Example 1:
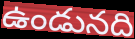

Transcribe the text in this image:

ఉండునది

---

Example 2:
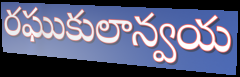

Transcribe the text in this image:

రఘుకులాన్వయ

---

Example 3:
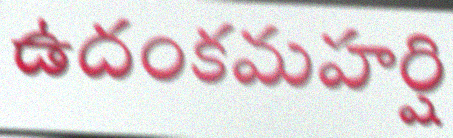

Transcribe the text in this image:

ఉదంకమహర్షి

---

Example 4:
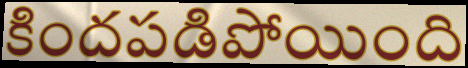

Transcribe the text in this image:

కిందపడిపోయింది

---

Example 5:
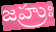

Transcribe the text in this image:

జహ్రుః